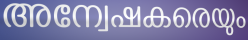
അന്വേഷകരെയും